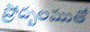
ప్రోద్బలముతో